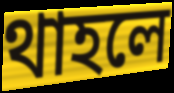
থাহলে